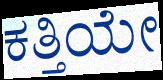
ಕತ್ತಿಯೇ